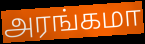
அரங்கமா